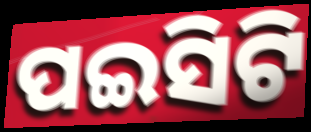
ପଇସିଟି